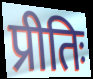
प्रीतिः